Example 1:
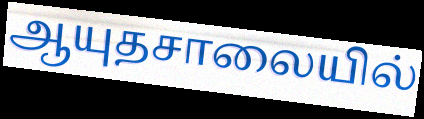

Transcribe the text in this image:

ஆயுதசாலையில்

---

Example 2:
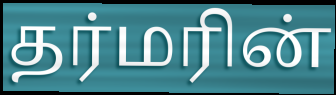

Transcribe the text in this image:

தர்மரின்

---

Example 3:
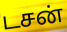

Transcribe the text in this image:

டசன்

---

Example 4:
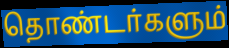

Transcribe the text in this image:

தொண்டர்களும்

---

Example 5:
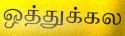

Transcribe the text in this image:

ஒத்துக்கல